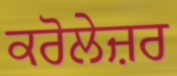
ਕਰੋਲੇਜ਼ਰ